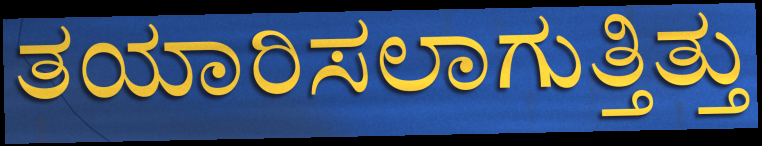
ತಯಾರಿಸಲಾಗುತ್ತಿತ್ತು